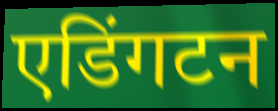
एडिंगटन